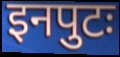
इनपुटः